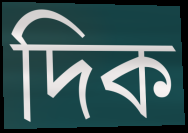
দিক